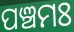
ପଞ୍ଚମଃ